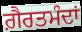
ਗ਼ੈਰਤਮੰਦਾਂ